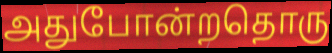
அதுபோன்றதொரு